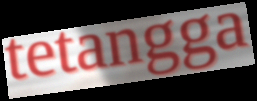
tetangga